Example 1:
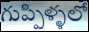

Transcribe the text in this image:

గుప్పిళ్ళలో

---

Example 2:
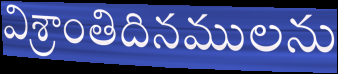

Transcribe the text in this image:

విశ్రాంతిదినములను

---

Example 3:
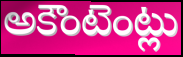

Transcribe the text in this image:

అకౌంటెంట్లు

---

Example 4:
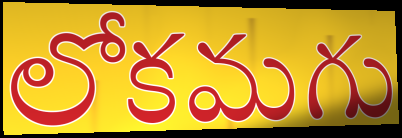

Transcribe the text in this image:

లోకమగు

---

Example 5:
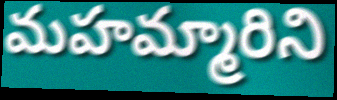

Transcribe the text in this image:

మహమ్మారిని